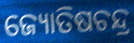
ଜ୍ୟୋତିଷଚନ୍ଦ୍ର